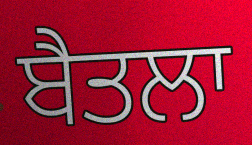
ਬੈਤਲਾ